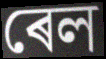
ৰেল